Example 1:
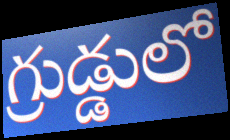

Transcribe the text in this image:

గ్రుడ్డులో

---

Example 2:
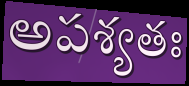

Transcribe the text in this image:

అపశ్యతః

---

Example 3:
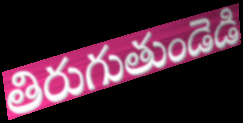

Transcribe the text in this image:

తిరుగుతుండెడి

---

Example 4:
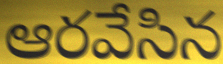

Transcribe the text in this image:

ఆరవేసిన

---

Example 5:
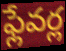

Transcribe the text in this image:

ఫ్లేవర్ల